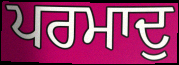
ਪਰਮਾਦੁ